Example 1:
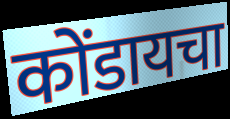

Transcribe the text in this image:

कोंडायचा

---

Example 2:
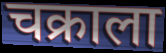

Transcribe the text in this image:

चक्राला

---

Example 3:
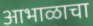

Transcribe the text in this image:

आभाळाचा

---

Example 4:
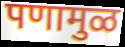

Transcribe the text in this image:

पणामुळ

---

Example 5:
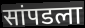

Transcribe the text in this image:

सांपडला